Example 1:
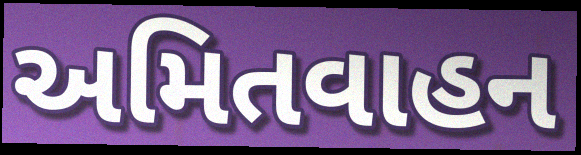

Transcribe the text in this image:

અમિતવાહન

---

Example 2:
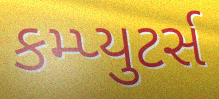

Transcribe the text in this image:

કમ્પ્યુટર્સ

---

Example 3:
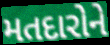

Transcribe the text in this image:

મતદારોને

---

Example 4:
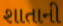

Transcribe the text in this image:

શાતાની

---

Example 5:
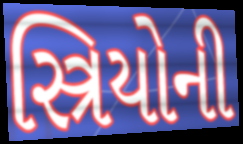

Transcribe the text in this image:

સ્ત્રિયોની